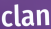
clan